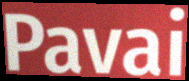
Pavai